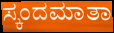
ಸ್ಕಂದಮಾತಾ